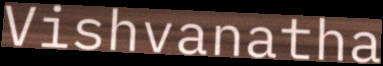
Vishvanatha